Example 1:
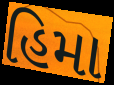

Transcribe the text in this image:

હિમા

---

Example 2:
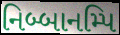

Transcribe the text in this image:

નિબ્બાનમ્પિ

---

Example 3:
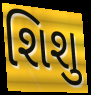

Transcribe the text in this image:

શિશુ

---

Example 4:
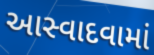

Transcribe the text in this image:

આસ્વાદવામાં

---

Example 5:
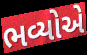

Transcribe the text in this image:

ભવ્યોએ